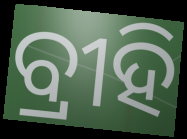
ବ୍ରୀହି